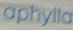
aphylla